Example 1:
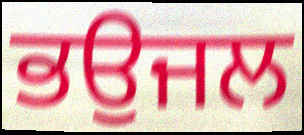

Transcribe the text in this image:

ਭਉਜਲ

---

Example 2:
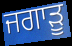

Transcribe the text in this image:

ਜਗਾੜੂ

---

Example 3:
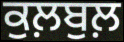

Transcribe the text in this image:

ਕੁਲ਼ਬੁਲ਼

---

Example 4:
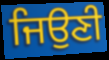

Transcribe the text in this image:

ਜਿਉਣੀ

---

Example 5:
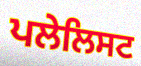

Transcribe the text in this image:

ਪਲੇਲਿਸਟ